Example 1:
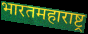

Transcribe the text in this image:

भारतमहाराष्ट्र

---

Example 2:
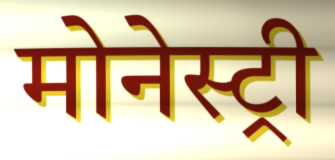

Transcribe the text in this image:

मोनेस्‍ट्री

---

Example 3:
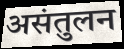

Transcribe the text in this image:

असंतुलन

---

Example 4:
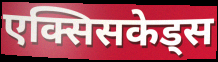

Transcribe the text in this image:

एक्सिसकेड्स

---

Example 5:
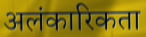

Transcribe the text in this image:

अलंकारिकता